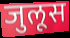
जुलूस